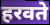
हरवते